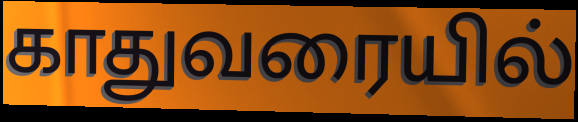
காதுவரையில்